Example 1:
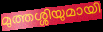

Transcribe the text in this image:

മുത്തശ്ശിയുമായി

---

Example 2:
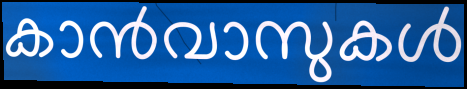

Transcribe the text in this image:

കാൻവാസുകൾ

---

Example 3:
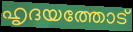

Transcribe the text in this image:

ഹൃദയത്തോട്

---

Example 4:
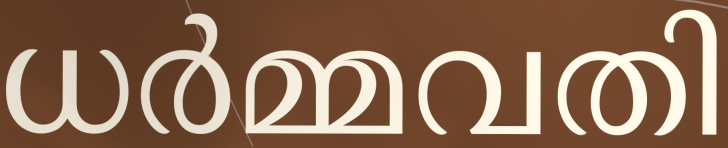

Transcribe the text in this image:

ധർമ്മവതി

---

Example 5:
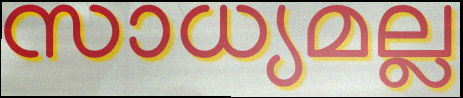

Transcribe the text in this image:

സാധ്യമല്ല